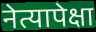
नेत्यापेक्षा